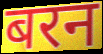
बरन